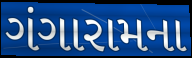
ગંગારામના